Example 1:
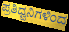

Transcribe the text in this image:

ಪ್ರತಿಧ್ವನಿಗಳಿಂದ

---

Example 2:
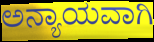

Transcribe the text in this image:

ಅನ್ಯಾಯವಾಗಿ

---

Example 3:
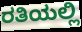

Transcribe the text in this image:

ರತಿಯಲ್ಲಿ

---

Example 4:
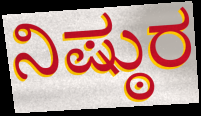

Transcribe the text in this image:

ನಿಷ್ಠುರ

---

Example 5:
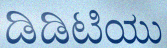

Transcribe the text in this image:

ಡಿಡಿಟಿಯು